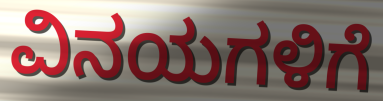
ವಿನಯಗಳಿಗೆ